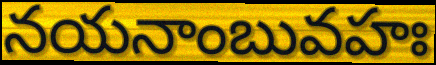
నయనాంబువహః